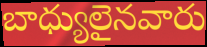
బాధ్యులైనవారు